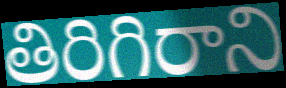
తిరిగిరాని